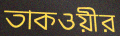
তাকওয়ীর